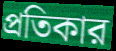
প্রতিকার